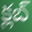
క్లబ్